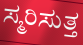
ಸ್ಮರಿಸುತ್ತ